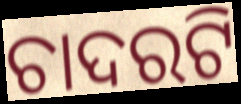
ଚାଦରଟି